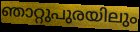
ഞാറ്റുപുരയിലും